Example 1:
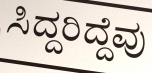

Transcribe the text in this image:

ಸಿದ್ದರಿದ್ದೆವು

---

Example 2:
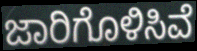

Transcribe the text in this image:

ಜಾರಿಗೊಳಿಸಿವೆ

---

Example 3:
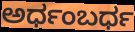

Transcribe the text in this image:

ಅರ್ಧಂಬರ್ಧ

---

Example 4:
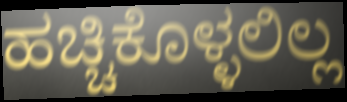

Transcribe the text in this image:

ಹಚ್ಚಿಕೊಳ್ಳಲಿಲ್ಲ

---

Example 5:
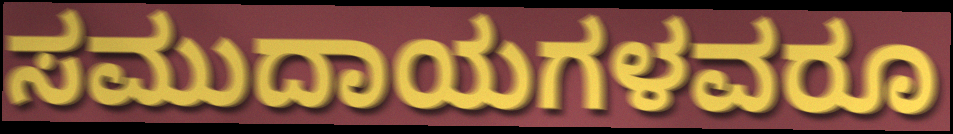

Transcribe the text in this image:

ಸಮುದಾಯಗಳವರೂ